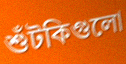
শুঁটকিগুলো